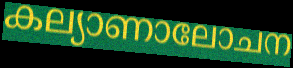
കല്യാണാലോചന